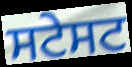
ਸਟੇਸਟ